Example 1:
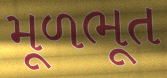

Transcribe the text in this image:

મૂળભૂત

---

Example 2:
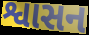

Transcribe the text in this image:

શ્વાસન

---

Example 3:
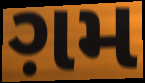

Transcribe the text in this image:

ગ઼મ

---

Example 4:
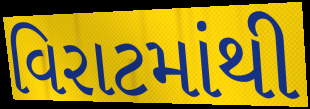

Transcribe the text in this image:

વિરાટમાંથી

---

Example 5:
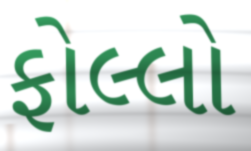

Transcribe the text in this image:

ફોલ્લો